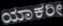
ಯಾಕರೀ